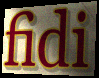
fidi